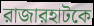
রাজারহাটকে